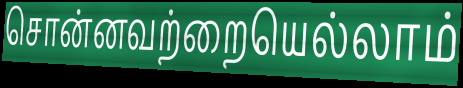
சொன்னவற்றையெல்லாம்